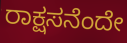
ರಾಕ್ಷಸನೆಂದೇ